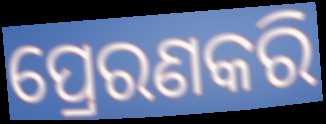
ପ୍ରେରଣକରି